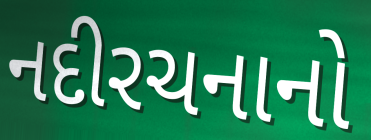
નદીરચનાનો